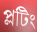
প্লটিং